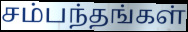
சம்பந்தங்கள்